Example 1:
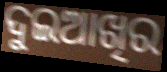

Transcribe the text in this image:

ଦୁଇଆଖିର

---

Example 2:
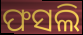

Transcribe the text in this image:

ଫସଲି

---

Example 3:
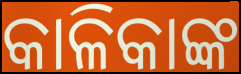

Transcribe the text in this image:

କାଳିକାଙ୍କ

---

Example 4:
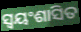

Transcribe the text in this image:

ସ୍ୱୟଂଶାସିତ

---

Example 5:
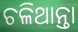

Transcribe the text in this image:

ଚଳିଥାନ୍ତା